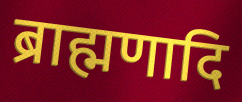
ब्राह्मणादि